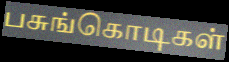
பசுங்கொடிகள்